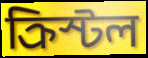
ক্রিস্টল